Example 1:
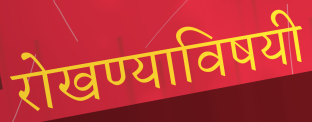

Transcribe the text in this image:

रोखण्याविषयी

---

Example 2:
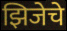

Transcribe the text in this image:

झिजेचे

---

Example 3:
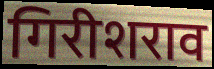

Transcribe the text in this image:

गिरीशराव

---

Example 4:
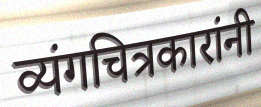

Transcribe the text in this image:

व्यंगचित्रकारांनी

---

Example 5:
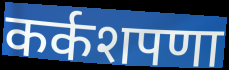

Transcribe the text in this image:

कर्कशपणा